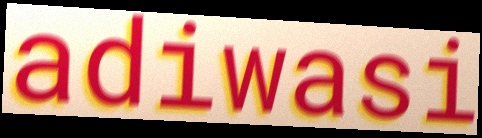
adiwasi